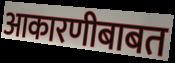
आकारणीबाबत